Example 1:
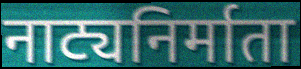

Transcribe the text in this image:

नाट्यनिर्माता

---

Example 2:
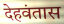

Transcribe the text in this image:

देहवंतास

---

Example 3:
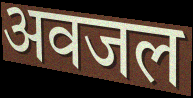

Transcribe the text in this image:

अवजल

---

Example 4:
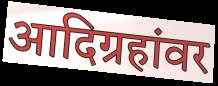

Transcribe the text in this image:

आदिग्रहांवर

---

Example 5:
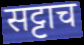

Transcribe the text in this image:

सट्टाच